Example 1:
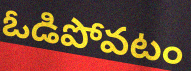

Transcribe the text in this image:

ఓడిపోవటం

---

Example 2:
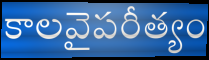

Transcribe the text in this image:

కాలవైపరీత్యం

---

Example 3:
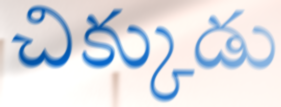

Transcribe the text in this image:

చిక్కుడు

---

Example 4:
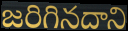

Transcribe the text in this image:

జరిగినదాని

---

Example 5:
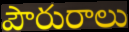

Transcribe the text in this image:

పౌరురాలు